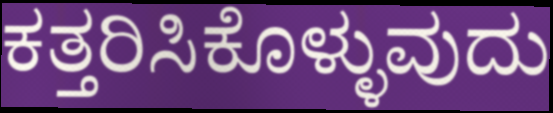
ಕತ್ತರಿಸಿಕೊಳ್ಳುವುದು